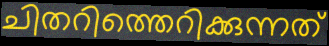
ചിതറിത്തെറിക്കുന്നത്